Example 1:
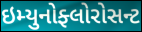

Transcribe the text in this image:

ઇમ્યુનોફ્લોરોસન્ટ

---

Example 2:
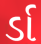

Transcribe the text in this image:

ર્ડા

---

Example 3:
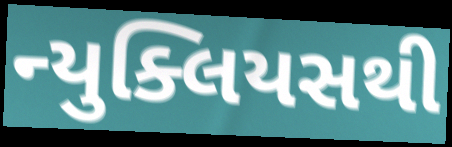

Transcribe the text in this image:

ન્યુક્લિયસથી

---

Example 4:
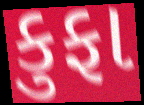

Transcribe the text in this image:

કુફા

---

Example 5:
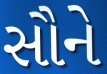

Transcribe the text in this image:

સૌને